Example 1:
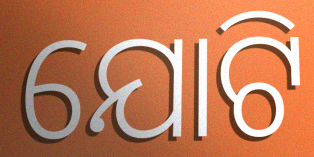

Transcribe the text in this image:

ଯୋଟି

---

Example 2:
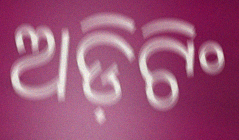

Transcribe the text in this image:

ଅଡ଼ିଟିଂ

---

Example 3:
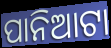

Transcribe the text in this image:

ପାନିଆଟା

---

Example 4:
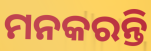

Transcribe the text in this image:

ମନକରନ୍ତି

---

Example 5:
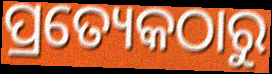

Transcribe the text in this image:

ପ୍ରତ୍ୟେକଠାରୁ